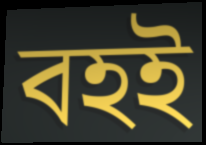
বহই